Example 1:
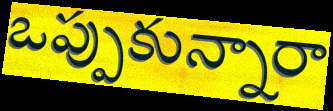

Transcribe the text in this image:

ఒప్పుకున్నారా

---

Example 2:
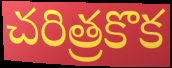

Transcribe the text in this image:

చరిత్రకొక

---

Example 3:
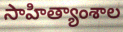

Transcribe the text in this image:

సాహిత్యాంశాల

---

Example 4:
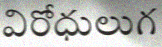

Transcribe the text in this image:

విరోధులుగ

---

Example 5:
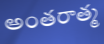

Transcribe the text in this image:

అంతరాత్మ